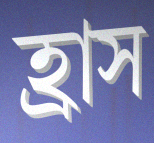
হ্ৰাস